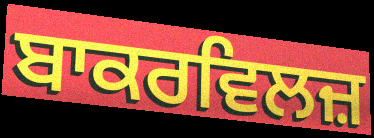
ਬਾਕਰਵਿਲਜ਼